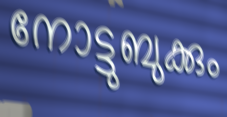
നോട്ടുബുക്കും